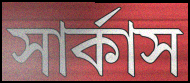
সার্কাস